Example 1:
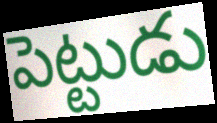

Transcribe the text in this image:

పెట్టుడు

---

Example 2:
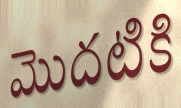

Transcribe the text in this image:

మొదటికి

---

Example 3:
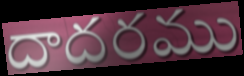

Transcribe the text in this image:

దాదరము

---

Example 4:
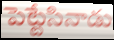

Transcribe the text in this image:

పెట్టేసినాడు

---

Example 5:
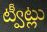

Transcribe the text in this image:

ట్వీట్లు